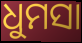
ଧୁମସା